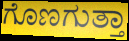
ಗೊಣಗುತ್ತಾ